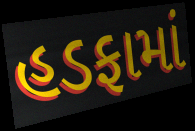
હડફામાં